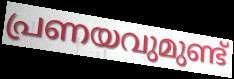
പ്രണയവുമുണ്ട്